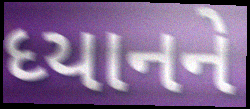
ધ્યાનને